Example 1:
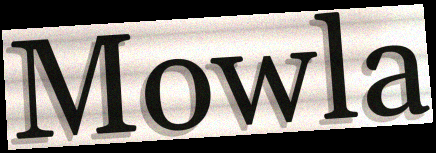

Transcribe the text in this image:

Mowla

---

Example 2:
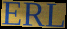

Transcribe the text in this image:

ERL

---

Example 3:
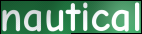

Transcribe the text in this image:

nautical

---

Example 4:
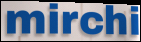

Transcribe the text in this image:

mirchi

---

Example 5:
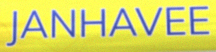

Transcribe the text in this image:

JANHAVEE